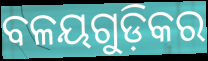
ବଳୟଗୁଡ଼ିକର